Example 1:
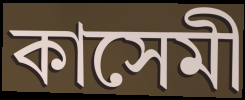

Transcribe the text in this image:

কাসেমী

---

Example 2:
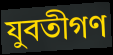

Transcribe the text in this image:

যুবতীগণ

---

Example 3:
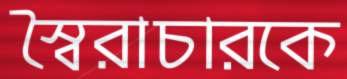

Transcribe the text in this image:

স্বৈরাচারকে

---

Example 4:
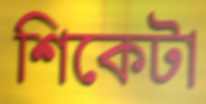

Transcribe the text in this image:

শিকেটা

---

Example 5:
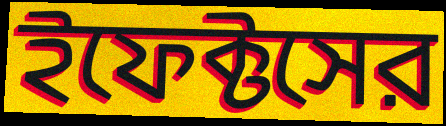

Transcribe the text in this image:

ইফেক্টসের